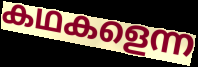
കഥകളെന്ന